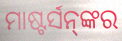
ମାଷ୍ଟର୍ସନ୍‌ଙ୍କର